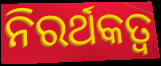
ନିରର୍ଥକତ୍ୱ